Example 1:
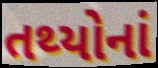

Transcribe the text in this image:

તથ્યોનાં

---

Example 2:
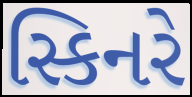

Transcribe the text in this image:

સ્કિનરે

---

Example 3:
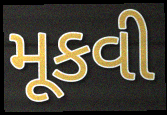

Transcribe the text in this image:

મૂકવી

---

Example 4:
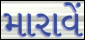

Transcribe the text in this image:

મારાવેં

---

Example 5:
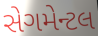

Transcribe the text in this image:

સેગમેન્ટલ